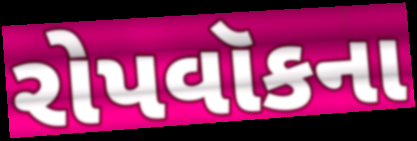
રોપવૉકના